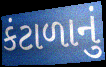
કંટાળાનું